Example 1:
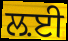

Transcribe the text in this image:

ਲ਼ਈ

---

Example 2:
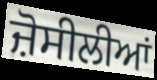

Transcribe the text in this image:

ਜ਼ੋਸੀਲੀਆਂ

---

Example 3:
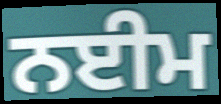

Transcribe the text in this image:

ਨਈਮ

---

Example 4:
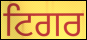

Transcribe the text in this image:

ਟਿਗਰ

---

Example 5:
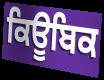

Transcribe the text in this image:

ਕਿਊਬਿਕ